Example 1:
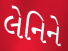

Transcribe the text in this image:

લેનિને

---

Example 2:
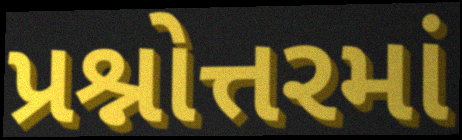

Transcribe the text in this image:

પ્રશ્નોત્તરમાં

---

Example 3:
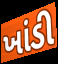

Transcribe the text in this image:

ખાંડી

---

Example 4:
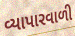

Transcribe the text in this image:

વ્યાપારવાળી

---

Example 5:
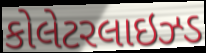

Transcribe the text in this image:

કોલેટરલાઇઝ્ડ